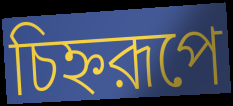
চিহ্নরূপে